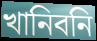
খানিবনি